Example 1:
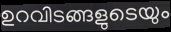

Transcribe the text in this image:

ഉറവിടങ്ങളുടെയും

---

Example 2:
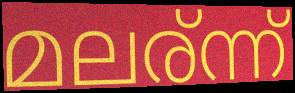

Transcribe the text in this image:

മലര്ന്ന്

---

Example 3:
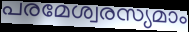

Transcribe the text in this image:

പരമേശ്വരസ്യമാം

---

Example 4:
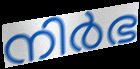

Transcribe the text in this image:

നിർഭ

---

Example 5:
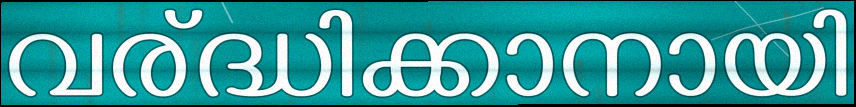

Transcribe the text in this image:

വര്ദ്ധിക്കാനായി